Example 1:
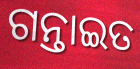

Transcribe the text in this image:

ଗନ୍ତାଇତ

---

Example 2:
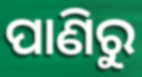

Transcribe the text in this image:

ପାଣିରୁ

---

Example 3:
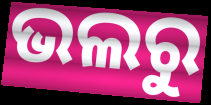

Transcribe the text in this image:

ଭଲରୁ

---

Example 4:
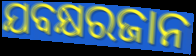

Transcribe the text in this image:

ଯବକ୍ଷରଜାନ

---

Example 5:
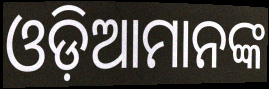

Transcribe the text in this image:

ଓଡ଼ିଆମାନଙ୍କ